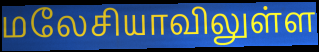
மலேசியாவிலுள்ள